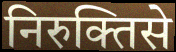
निरुक्तिसे